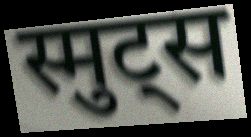
स्मुट्स